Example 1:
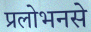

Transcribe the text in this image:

प्रलोभनसे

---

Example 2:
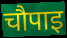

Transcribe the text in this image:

चौपाइ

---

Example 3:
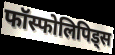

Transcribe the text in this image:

फॉस्फोलिपिड्स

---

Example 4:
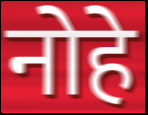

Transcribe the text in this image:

नोहे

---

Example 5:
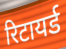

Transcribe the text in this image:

रिटायर्ड